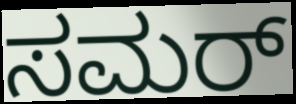
ಸಮರ್